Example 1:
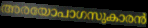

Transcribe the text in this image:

അരയോപാഗസുകാരൻ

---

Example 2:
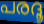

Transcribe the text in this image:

പരദൂ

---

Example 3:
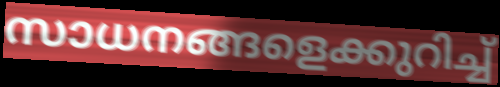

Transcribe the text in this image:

സാധനങ്ങളെക്കുറിച്ച്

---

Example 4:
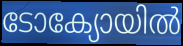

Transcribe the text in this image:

ടോക്യോയിൽ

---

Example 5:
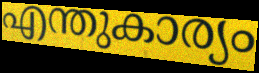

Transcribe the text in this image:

എന്തുകാര്യം